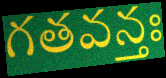
గతవన్తః